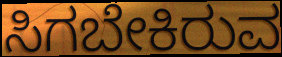
ಸಿಗಬೇಕಿರುವ